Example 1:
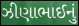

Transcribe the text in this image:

ઝીણાભાઈનું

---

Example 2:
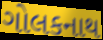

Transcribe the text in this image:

ગોલકનાથ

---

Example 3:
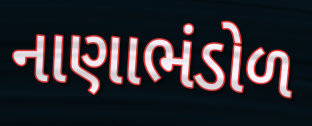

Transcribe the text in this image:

નાણાભંડોળ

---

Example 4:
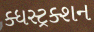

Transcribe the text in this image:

ક્ધસ્ટ્રક્શન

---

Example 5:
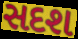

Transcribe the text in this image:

સદશ